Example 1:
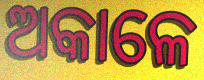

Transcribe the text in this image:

ଅକାଳେ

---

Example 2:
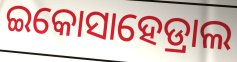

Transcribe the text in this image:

ଇକୋସାହେଡ୍ରାଲ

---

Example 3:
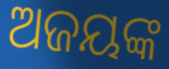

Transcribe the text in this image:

ଅଜୟଙ୍କ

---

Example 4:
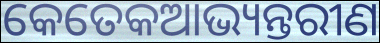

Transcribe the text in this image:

କେତେକଆଭ୍ୟନ୍ତରୀଣ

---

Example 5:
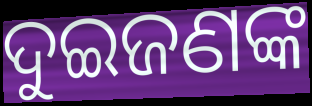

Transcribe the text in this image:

ଦୁଇଜଣଙ୍କ